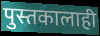
पुस्तकालाही